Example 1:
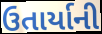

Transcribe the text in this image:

ઉતાર્યાની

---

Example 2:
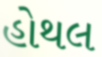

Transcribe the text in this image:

હોથલ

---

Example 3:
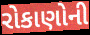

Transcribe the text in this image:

રોકાણોની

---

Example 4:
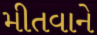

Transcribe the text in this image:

મીતવાને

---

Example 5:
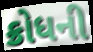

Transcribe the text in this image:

ક્રોધની